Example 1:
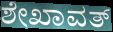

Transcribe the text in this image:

ಶೇಖಾವತ್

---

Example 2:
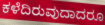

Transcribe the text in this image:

ಕಳೆದಿರುವುದಾದರೂ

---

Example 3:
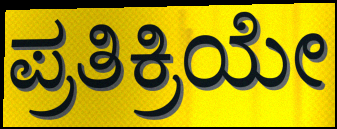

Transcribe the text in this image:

ಪ್ರತಿಕ್ರಿಯೇ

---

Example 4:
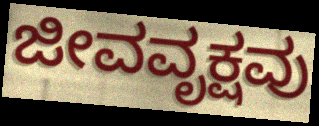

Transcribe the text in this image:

ಜೀವವೃಕ್ಷವು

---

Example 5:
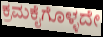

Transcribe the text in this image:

ಕ್ರಮಕೈಗೊಳ್ಳದೇ